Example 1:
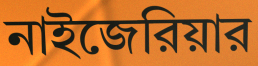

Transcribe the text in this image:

নাইজেরিয়ার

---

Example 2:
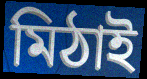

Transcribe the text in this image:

মিঠাই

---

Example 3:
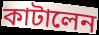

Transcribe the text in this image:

কাটালেন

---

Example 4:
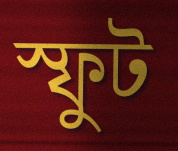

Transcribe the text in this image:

স্ফুট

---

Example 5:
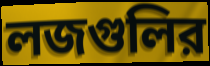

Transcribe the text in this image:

লজগুলির